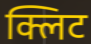
क्लिट